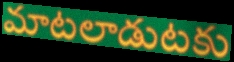
మాటలాడుటకు